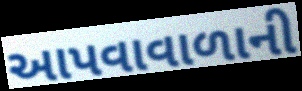
આપવાવાળાની